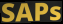
SAPs